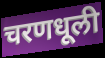
चरणधूली